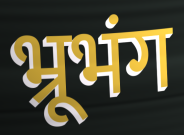
भ्रूभंग